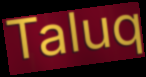
Taluq